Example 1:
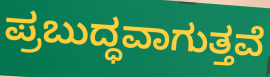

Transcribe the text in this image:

ಪ್ರಬುದ್ಧವಾಗುತ್ತವೆ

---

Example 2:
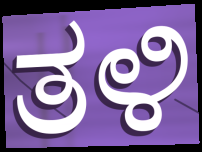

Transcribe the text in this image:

ತಳಿ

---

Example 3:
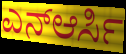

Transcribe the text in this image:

ಎನ್ಆರ್ಸಿ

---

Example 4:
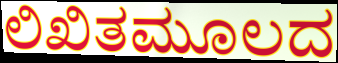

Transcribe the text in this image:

ಲಿಖಿತಮೂಲದ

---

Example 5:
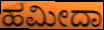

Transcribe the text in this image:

ಹಮೀದಾ